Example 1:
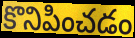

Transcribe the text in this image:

కొనిపించడం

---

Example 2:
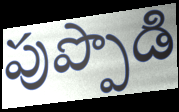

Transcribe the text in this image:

పుప్పొడి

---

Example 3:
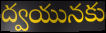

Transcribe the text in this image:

ద్వయునకు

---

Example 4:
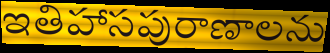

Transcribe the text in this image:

ఇతిహాసపురాణాలను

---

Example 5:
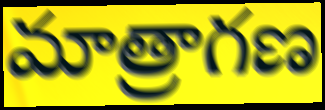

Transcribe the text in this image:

మాత్రాగణ